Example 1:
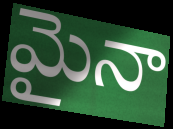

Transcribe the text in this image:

మైనా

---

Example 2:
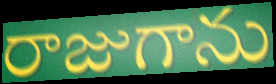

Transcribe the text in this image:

రాజుగాను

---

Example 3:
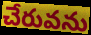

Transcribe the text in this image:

చేరువను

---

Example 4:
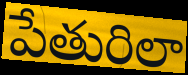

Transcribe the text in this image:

పేతురిలా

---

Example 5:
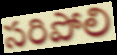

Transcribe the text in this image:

సరిపోలి